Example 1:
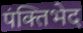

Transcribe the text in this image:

पंक्तिभेद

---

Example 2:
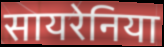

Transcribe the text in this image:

सायरेनिया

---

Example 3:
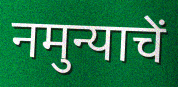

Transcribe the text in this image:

नमुन्याचें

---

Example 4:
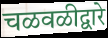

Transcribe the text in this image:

चळवळीद्वारे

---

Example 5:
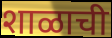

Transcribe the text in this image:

शाळाची